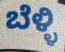
ಬೆಳ್ಳಿ